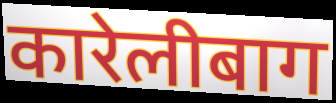
कारेलीबाग